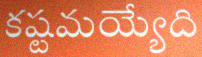
కష్టమయ్యేది